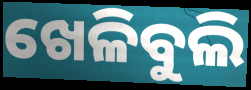
ଖେଳିବୁଲି